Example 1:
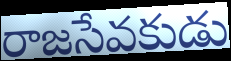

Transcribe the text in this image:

రాజసేవకుడు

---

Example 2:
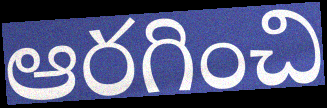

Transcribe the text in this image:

ఆరగించి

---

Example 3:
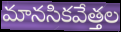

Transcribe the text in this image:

మానసికవేత్తల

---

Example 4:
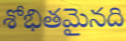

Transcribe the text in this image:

శోభితమైనది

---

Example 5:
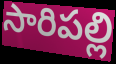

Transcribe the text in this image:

సారిపల్లి